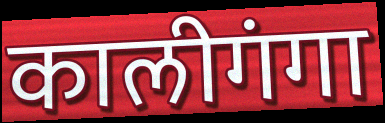
कालीगंगा